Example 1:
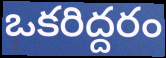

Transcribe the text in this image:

ఒకరిద్దరం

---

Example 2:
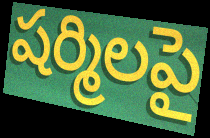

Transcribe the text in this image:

షర్మిలపై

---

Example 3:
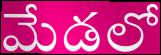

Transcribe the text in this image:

మేడలో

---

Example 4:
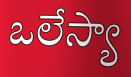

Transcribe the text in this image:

ఒలేస్యా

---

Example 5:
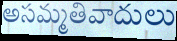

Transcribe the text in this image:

అసమ్మతివాదులు